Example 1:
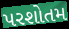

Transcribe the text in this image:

પરશોતમ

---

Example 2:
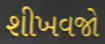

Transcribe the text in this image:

શીખવજો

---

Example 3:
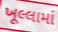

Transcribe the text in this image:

ખૂલ્લામાં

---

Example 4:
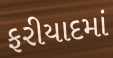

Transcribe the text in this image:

ફરીયાદમાં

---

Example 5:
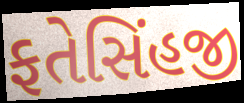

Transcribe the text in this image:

ફતેસિંહજી